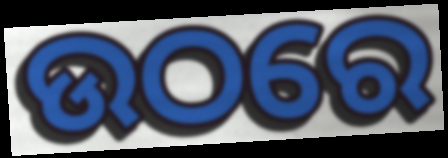
ଉଠରେ